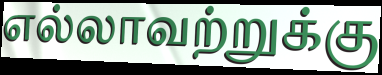
எல்லாவற்றுக்கு